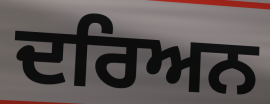
ਦਰਿਅਨ